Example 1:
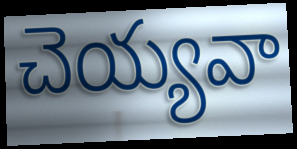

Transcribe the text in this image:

చెయ్యవా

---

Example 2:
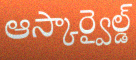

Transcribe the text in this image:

ఆస్కార్వైల్డ్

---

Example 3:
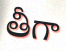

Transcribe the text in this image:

తీగా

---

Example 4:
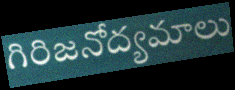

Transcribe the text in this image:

గిరిజనోద్యమాలు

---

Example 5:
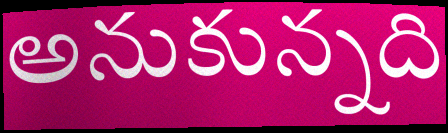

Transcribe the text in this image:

అనుకున్నది